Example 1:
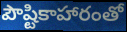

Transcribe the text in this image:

పౌష్టికాహారంతో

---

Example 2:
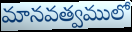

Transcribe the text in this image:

మానవత్వములో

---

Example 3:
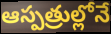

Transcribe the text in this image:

ఆస్పత్రుల్లోనే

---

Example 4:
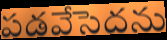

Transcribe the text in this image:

పడవేసెదను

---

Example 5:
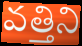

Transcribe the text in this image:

వత్తిని